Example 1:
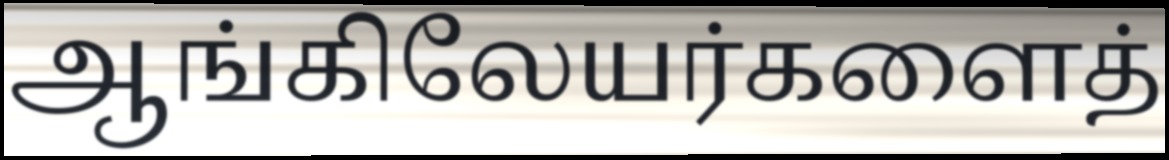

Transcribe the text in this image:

ஆங்கிலேயர்களைத்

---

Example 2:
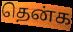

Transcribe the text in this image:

தென்க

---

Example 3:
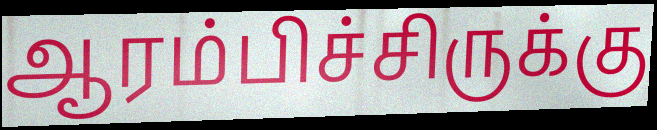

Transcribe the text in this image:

ஆரம்பிச்சிருக்கு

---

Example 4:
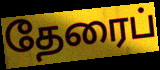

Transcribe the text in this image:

தேரைப்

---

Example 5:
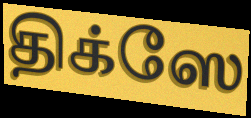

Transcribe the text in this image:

திக்ஸே